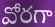
వోరగా